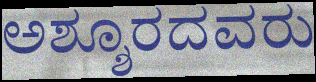
ಅಶ್ಶೂರದವರು